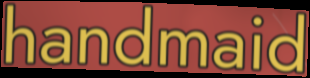
handmaid